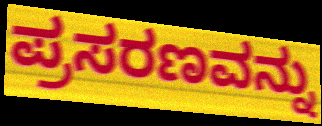
ಪ್ರಸರಣವನ್ನು